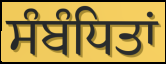
ਸੰਬੰਧਿਤਾਂ